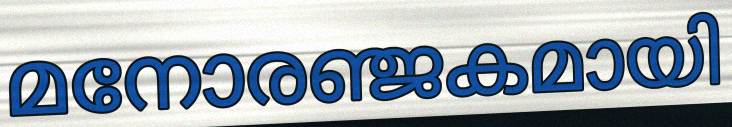
മനോരഞ്ജകമായി